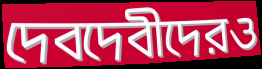
দেবদেবীদেরও